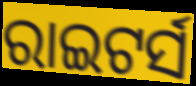
ରାଇଟର୍ସ